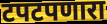
टपटपणारा